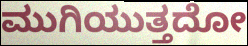
ಮುಗಿಯುತ್ತದೋ